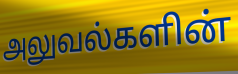
அலுவல்களின்